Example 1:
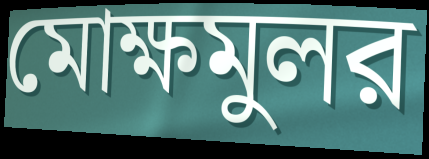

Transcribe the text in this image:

মোক্ষমুলর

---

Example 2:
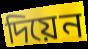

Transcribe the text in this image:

দিয়েন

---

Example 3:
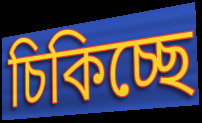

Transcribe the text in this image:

চিকিচ্ছে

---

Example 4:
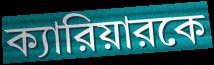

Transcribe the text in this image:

ক্যারিয়ারকে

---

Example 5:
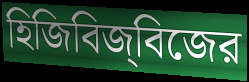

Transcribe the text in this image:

হিজিবিজ্‌বিজের